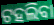
ଟହଲିବା